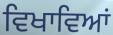
ਵਿਖਾਵਿਆਂ